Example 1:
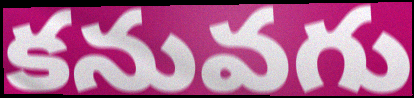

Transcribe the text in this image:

కనువగు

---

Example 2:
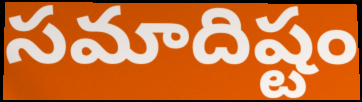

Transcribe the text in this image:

సమాదిష్టం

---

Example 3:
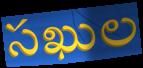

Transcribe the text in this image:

సఖుల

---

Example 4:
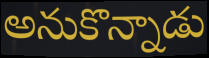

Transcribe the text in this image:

అనుకొన్నాడు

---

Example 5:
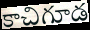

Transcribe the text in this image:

కాచిగూడ